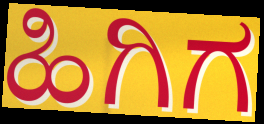
ಹಿಗಿಗ